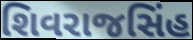
શિવરાજસિંહ